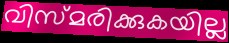
വിസ്മരിക്കുകയില്ല